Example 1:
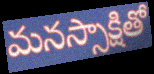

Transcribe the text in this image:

మనస్సాక్షితో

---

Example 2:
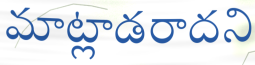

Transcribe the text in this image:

మాట్లాడరాదని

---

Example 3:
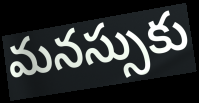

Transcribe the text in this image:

మనస్సుకు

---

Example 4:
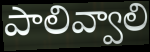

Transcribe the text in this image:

పాలివ్వాలి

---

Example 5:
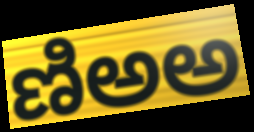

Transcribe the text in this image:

ణిఅఅ